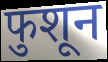
फुशून